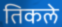
तिकले